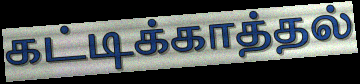
கட்டிக்காத்தல்